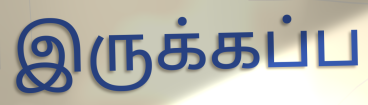
இருக்கப்ப